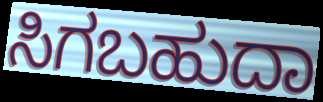
ಸಿಗಬಹುದಾ